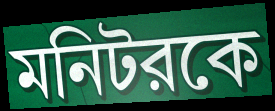
মনিটরকে